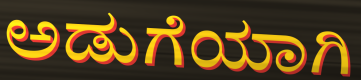
ಅಡುಗೆಯಾಗಿ